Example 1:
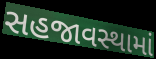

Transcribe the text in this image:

સહજાવસ્થામાં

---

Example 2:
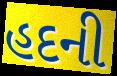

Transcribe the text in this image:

હદની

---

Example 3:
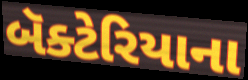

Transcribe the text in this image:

બૅક્ટેરિયાના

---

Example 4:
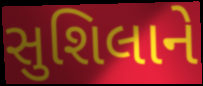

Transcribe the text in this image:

સુશિલાને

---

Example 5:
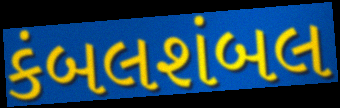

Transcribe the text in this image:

કંબલશંબલ